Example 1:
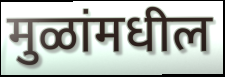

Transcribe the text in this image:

मुळांमधील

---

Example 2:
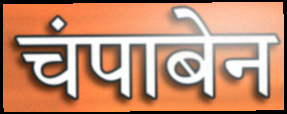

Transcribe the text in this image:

चंपाबेन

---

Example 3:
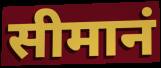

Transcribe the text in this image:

सीमानं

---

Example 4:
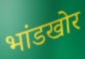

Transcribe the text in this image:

भांडखोर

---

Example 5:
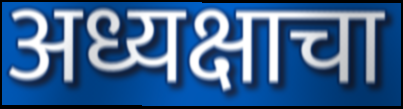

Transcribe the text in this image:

अध्यक्षाचा